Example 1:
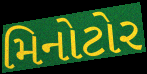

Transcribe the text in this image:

મિનોટોર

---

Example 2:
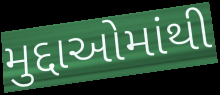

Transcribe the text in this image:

મુદ્દાઓમાંથી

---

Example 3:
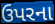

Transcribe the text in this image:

ઉપરના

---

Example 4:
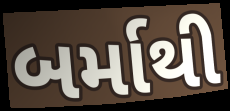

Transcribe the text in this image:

બર્માથી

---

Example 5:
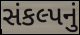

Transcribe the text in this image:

સંકલ્પનું